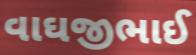
વાઘજીભાઈ